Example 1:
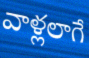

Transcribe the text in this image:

వాళ్లలాగే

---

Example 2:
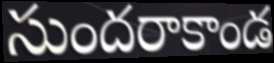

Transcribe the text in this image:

సుందరాకాండ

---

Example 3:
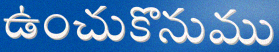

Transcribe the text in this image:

ఉంచుకొనుము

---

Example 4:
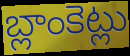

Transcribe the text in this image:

బ్లాంకెట్లు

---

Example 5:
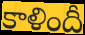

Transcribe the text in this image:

కాళిందీ